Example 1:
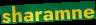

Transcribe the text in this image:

sharamne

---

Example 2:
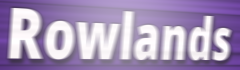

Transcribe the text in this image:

Rowlands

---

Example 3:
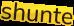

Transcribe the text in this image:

shunte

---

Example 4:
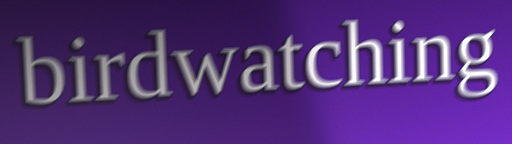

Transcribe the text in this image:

birdwatching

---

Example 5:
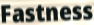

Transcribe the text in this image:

Fastness